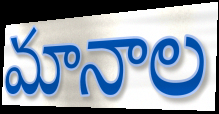
మానాల